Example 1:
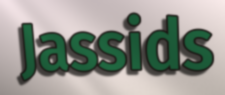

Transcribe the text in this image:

Jassids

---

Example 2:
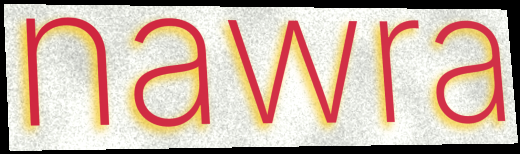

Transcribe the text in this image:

nawra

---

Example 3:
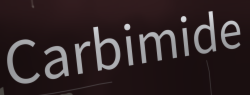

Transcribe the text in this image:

Carbimide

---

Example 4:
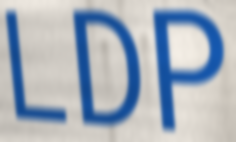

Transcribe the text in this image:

LDP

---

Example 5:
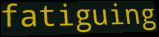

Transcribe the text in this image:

fatiguing